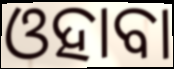
ଓହାବା